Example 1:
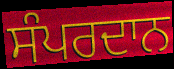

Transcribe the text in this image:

ਸੰਪਰਦਾਨ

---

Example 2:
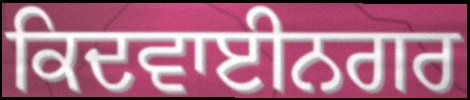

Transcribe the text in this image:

ਕਿਦਵਾਈਨਗਰ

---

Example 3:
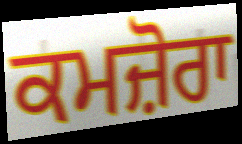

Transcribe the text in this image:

ਕਮਜ਼ੋਰਾ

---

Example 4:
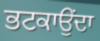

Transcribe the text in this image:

ਭਟਕਾਉਂਦਾ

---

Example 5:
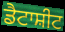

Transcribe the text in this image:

ਡੈਟਾਸ਼ੀਟ